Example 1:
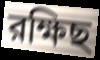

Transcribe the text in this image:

রক্ষিছ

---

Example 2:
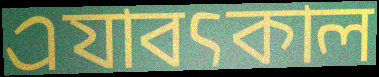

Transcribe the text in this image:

এযাবৎকাল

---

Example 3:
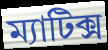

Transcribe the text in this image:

ম্যাটিক্স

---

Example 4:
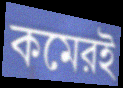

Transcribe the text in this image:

কমেরই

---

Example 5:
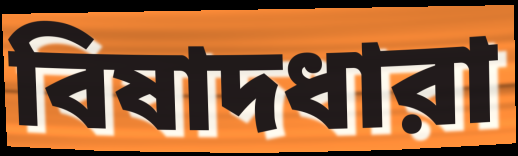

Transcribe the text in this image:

বিষাদধারা